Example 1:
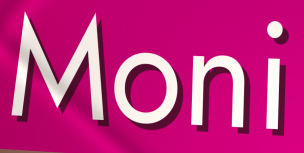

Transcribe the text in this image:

Moni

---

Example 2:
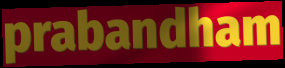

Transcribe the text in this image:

prabandham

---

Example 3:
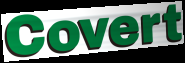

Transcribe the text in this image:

Covert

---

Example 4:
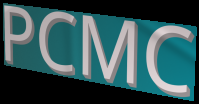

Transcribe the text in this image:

PCMC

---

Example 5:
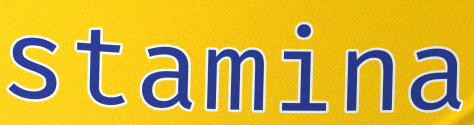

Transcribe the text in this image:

stamina